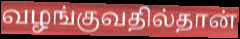
வழங்குவதில்தான்